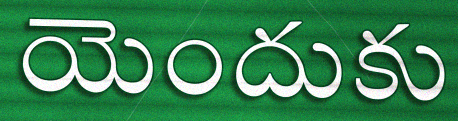
యెందుకు